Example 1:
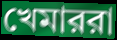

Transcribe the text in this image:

খেমাররা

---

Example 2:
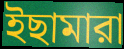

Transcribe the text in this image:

ইছামারা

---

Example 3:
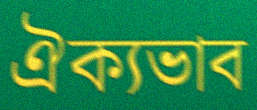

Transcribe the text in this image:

ঐক্যভাব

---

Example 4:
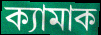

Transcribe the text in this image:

ক্যামাক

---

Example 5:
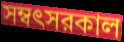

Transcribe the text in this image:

সম্বৎসরকাল